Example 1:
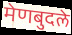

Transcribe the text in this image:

मेणबुदले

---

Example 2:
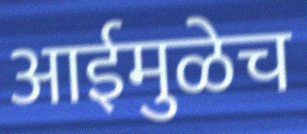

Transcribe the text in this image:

आईमुळेच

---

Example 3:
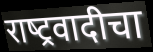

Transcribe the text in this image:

राष्ट्रवादीचा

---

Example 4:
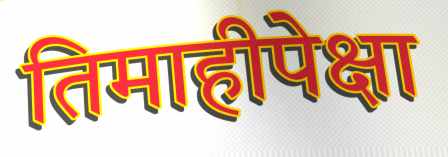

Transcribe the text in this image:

तिमाहीपेक्षा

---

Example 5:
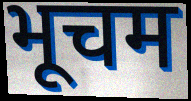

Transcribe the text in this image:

भूचम